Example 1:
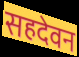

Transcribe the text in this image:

सहदेवन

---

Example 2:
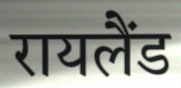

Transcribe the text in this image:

रायलैंड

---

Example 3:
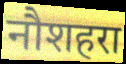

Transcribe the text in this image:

नौशहरा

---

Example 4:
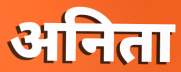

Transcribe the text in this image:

अनिता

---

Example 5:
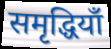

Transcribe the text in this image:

समृद्धियाँ